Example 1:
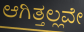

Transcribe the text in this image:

ಆಗಿತ್ತಲ್ಲವೇ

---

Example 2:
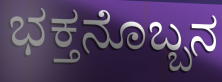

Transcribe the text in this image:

ಭಕ್ತನೊಬ್ಬನ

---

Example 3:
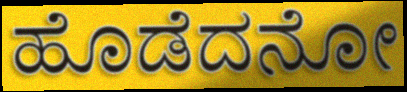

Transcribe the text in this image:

ಹೊಡೆದನೋ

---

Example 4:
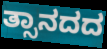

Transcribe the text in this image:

ತ್ಸಾನದದ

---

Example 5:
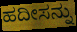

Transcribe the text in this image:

ಹದೀಸನ್ನು